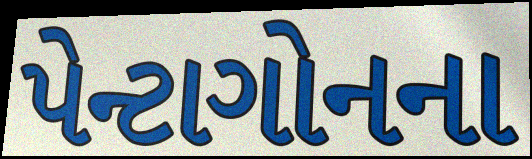
પેન્ટાગોનના